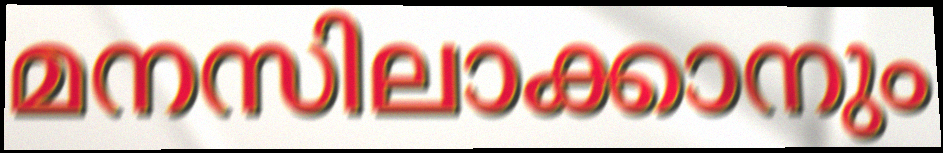
മനസിലാക്കാനും